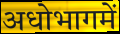
अधोभागमें